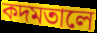
কদমতালে